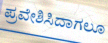
ಪ್ರವೇಶಿಸಿದಾಗಲೂ